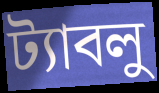
ট্যাবলু